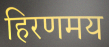
हिरणमय